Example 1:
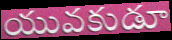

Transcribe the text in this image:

యువకుడూ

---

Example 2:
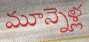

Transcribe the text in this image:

మూన్నెళ్ల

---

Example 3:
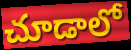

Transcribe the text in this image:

చూడాలో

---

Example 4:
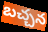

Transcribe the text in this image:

బచ్చన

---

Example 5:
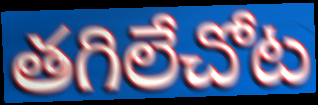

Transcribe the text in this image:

తగిలేచోట